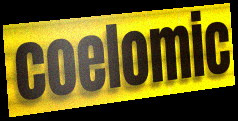
coelomic